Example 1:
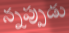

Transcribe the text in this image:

న్నప్పుడు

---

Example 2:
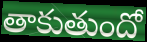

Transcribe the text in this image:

తాకుతుందో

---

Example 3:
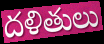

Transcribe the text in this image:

దళితులు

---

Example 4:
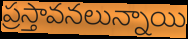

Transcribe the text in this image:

ప్రస్తావనలున్నాయి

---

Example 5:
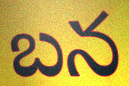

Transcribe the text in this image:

బన